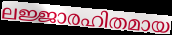
ലജ്ജാരഹിതമായ